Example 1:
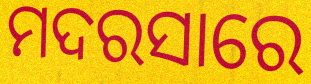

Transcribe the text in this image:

ମଦରସାରେ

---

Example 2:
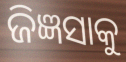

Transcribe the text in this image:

ଜିଜ୍ଞସାକୁ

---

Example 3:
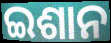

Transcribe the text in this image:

ଇଶାନ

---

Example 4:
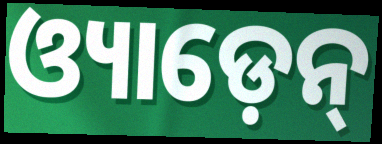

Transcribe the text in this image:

ଓ୍ୟାଡ଼େନ୍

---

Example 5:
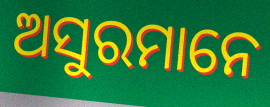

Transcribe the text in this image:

ଅସୁରମାନେ